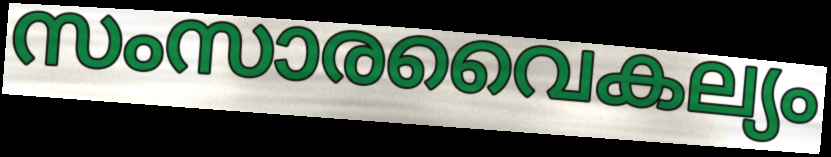
സംസാരവൈകല്യം